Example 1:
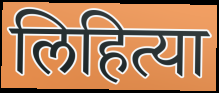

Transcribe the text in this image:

लिहित्या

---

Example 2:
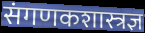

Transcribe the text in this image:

संगणकशास्त्रज्ञ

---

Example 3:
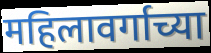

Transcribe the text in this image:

महिलावर्गाच्या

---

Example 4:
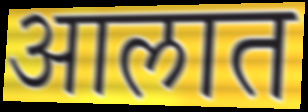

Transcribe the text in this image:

आलात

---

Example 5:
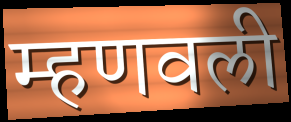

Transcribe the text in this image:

म्हणवली